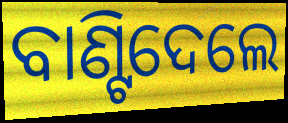
ବାଣ୍ଟିଦେଲେ